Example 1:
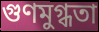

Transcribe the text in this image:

গুণমুগ্ধতা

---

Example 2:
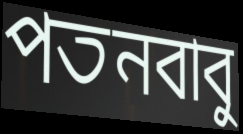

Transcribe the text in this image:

পতনবাবু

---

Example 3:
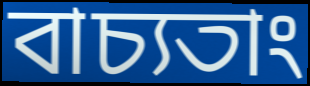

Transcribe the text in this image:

বাচ্যতাং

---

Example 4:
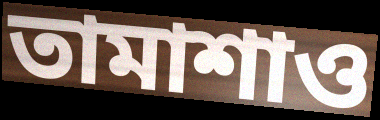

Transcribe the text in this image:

তামাশাও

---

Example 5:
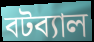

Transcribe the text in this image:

বটব্যাল